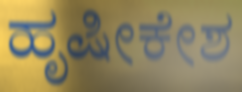
ಹೃಷೀಕೇಶ